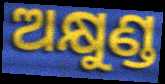
ଅକ୍ଷୁଣ୍ଡ